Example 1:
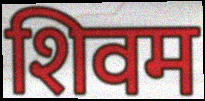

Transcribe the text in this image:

शिवम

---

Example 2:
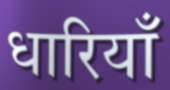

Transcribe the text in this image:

धारियाँ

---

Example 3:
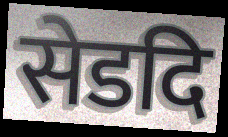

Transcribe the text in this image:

सेडदि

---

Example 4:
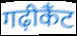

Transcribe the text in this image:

गढ़ीकैंट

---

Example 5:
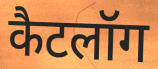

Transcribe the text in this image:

कैटलॉग